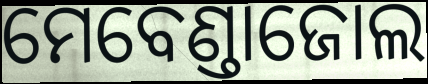
ମେବେଣ୍ଡାଜୋଲ